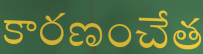
కారణంచేత